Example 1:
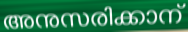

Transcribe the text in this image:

അനുസരിക്കാന്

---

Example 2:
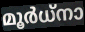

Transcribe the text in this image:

മൂർധ്നാ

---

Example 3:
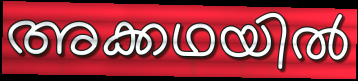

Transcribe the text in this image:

അക്കഥയിൽ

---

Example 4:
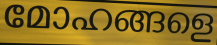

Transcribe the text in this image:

മോഹങ്ങളെ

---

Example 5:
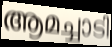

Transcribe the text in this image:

ആമച്ചാടി